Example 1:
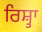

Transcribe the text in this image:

ਰਿਸ਼੍ਤਾ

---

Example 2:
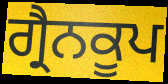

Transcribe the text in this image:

ਗ੍ਰੈਨਕੂਪ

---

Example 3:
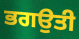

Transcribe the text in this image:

ਭਗਉਤੀ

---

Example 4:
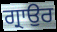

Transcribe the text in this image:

ਗ੍ਰਾਉਰ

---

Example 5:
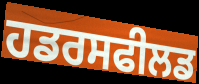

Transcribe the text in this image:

ਹਡਰਸਫੀਲਡ